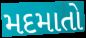
મદમાતો